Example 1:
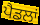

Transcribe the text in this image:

ਪੈਡਲਾਂ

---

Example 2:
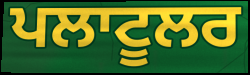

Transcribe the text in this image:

ਪਲਾਟੂਲਰ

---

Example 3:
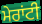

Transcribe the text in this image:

ਮੇਰਾਂਟੀ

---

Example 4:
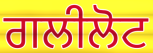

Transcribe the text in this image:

ਗਲੀਲੋਟ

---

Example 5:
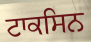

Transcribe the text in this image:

ਟਾਕਸਿਨ